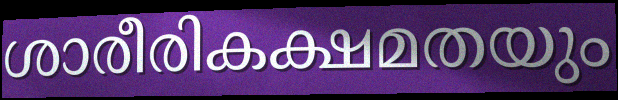
ശാരീരികക്ഷമതയും